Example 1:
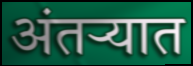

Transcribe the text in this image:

अंतऱ्यात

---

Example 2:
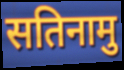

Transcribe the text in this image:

सतिनामु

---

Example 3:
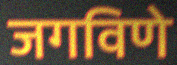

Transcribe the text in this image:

जगविणे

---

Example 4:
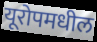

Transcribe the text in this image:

यूरोपमधील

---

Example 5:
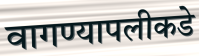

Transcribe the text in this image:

वागण्यापलीकडे